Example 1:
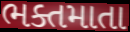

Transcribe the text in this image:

ભક્તમાતા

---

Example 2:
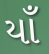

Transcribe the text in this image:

યાઁ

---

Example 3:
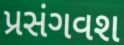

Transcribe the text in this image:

પ્રસંગવશ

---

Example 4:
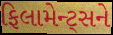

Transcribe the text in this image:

ફિલામેન્ટ્સને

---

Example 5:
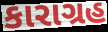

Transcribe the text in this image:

કારાગ્રહ